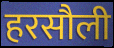
हरसौली